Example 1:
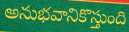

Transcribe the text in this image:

అనుభవానికొస్తుంది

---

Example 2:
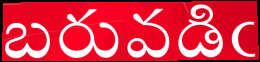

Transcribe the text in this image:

బరువడిఁ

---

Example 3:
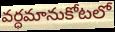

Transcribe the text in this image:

వర్ధమానుకోటలో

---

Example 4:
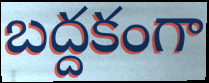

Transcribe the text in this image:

బద్దకంగా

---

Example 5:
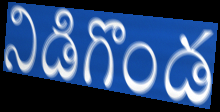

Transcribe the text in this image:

నిడిగొండ